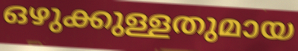
ഒഴുക്കുള്ളതുമായ